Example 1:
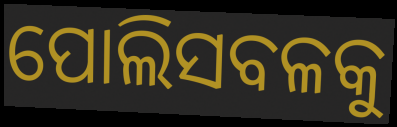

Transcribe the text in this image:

ପୋଲିସବଳକୁ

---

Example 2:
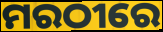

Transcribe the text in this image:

ମରଠୀରେ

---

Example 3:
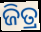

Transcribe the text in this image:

ଜିତ୍ର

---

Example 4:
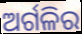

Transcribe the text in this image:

ଅର୍ଗଳିର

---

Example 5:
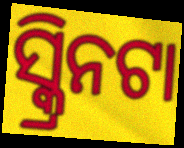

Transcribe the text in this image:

ସ୍କ୍ରିନଟା